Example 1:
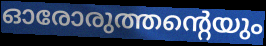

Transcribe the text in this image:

ഓരോരുത്തന്റെയും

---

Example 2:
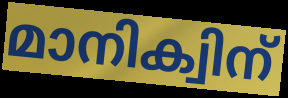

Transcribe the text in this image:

മാനിക്വിന്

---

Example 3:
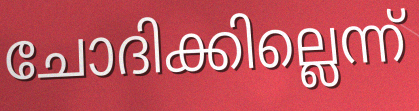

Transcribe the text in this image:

ചോദിക്കില്ലെന്ന്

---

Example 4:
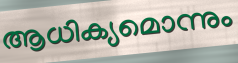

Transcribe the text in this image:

ആധിക്യമൊന്നും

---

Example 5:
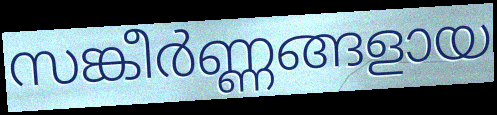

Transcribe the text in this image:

സങ്കീർണ്ണങ്ങളായ